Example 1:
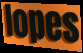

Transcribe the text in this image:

lopes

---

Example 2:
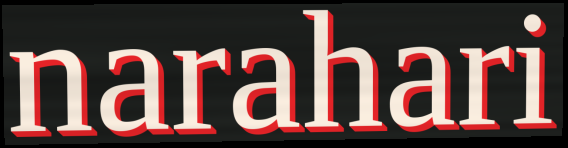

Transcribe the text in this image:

narahari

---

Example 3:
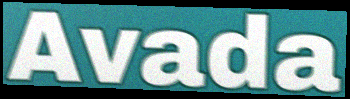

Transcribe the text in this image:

Avada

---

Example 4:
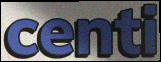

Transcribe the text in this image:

centi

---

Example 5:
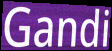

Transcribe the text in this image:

Gandi